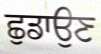
ਛੁਡਾਉਣ